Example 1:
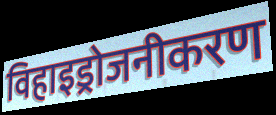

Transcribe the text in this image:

विहाइड्रोजनीकरण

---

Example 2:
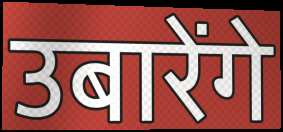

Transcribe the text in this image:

उबारेंगे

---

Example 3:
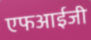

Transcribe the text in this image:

एफआईजी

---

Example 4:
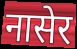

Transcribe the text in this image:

नासेर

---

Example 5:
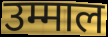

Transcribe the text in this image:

उम्माल